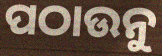
ପଠାଉନୁ